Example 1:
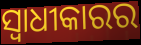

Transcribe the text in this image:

ସ୍ୱାଧୀକାରର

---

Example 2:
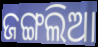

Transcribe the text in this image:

ଜଙ୍ଗଲିଆ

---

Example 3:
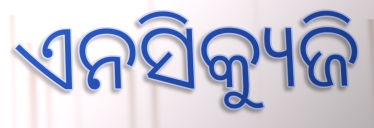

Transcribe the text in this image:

ଏନସିକ୍ୟୁଜି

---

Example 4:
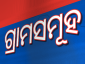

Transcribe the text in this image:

ଗ୍ରାମସମୂହ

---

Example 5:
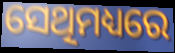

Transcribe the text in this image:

ସେଥିମଧ୍ୟରେ